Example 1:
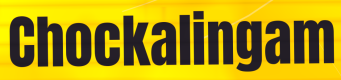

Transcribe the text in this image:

Chockalingam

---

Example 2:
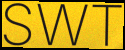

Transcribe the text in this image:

SWT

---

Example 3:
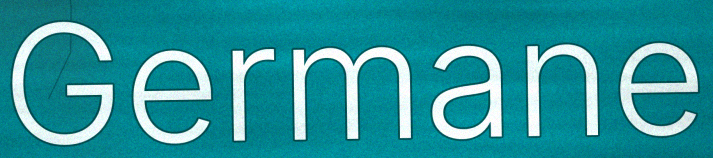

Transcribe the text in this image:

Germane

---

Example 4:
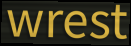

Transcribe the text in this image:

wrest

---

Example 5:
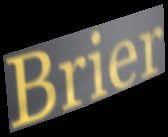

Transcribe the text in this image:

Brier